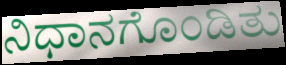
ನಿಧಾನಗೊಂಡಿತು